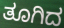
ತೂಗಿದ